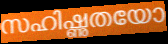
സഹിഷ്ണുതയോ